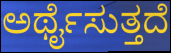
ಅರ್ಥೈಸುತ್ತದೆ